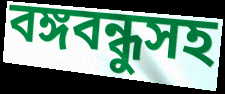
বঙ্গবন্ধুসহ